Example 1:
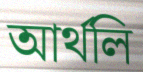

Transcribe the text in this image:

আর্থলি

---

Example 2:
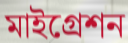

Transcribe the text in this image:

মাইগ্রেশন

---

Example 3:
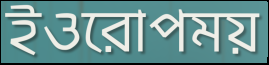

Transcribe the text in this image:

ইওরোপময়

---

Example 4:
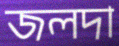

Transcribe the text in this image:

জলদা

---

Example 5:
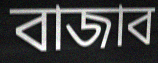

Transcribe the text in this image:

বাজাব